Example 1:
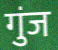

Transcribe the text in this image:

गुंज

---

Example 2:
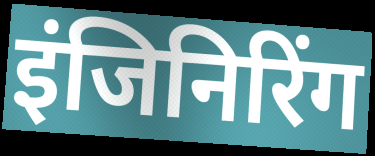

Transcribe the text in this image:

इंजिनिरिंग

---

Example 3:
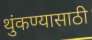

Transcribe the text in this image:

थुंकण्यासाठी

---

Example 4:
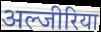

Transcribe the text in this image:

अल्जीरिया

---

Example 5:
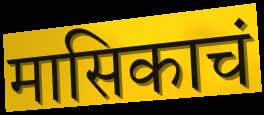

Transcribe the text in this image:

मासिकाचं